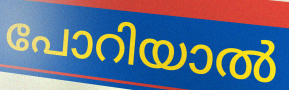
പോറിയാൽ